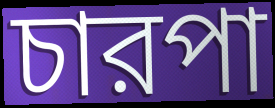
চারপা